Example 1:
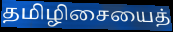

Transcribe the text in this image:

தமிழிசையைத்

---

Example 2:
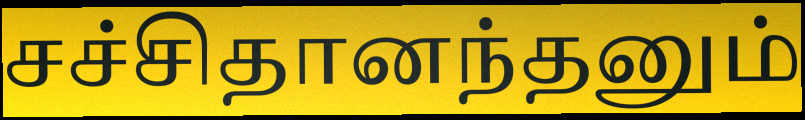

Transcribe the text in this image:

சச்சிதானந்தனும்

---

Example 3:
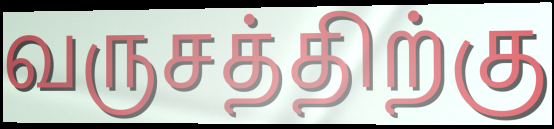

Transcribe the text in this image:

வருசத்திற்கு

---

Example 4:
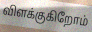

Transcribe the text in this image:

விளக்குகிறோம்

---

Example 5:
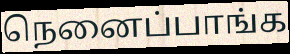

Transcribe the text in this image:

நெனைப்பாங்க